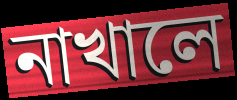
নাখালে